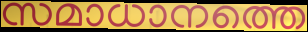
സമാധാനത്തെ